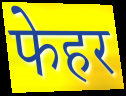
फेहर